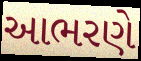
આભરણે